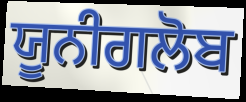
ਯੂਨੀਗਲੋਬ